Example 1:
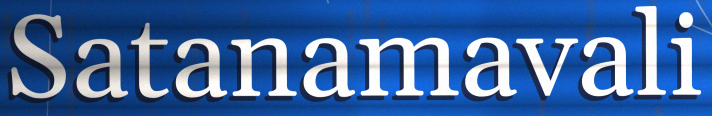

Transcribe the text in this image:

Satanamavali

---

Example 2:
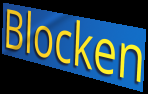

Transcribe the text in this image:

Blocken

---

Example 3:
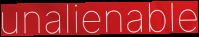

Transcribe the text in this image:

unalienable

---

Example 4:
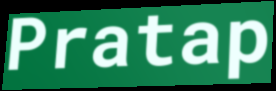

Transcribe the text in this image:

Pratap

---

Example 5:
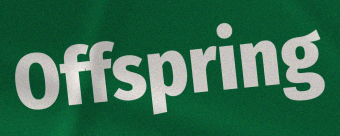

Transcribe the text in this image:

Offspring